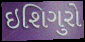
ઇશિગુરો